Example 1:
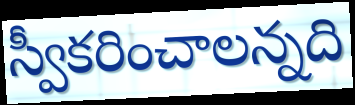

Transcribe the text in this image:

స్వీకరించాలన్నది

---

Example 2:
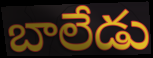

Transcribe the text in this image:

బాలేడు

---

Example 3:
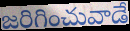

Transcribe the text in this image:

జరిగించువాడే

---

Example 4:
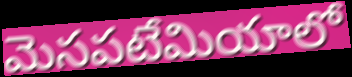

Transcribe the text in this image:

మెసపటేమియాలో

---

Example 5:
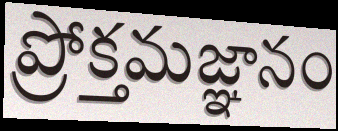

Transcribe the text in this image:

ప్రోక్తమజ్ఞానం